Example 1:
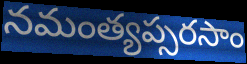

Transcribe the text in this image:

నమంత్యప్సరసాం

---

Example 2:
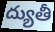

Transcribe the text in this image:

ద్యుతీ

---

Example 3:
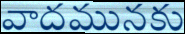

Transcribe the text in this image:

వాదమునకు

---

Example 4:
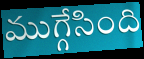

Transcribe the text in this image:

ముగ్గేసింది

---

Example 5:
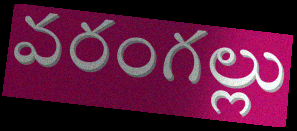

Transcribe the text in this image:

వరంగల్లు